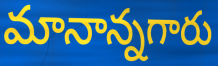
మానాన్నగారు